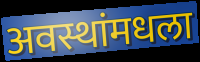
अवस्थांमधला